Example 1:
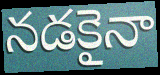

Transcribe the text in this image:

నడకైనా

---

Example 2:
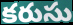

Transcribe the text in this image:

కరుసు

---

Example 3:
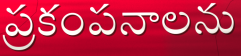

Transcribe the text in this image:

ప్రకంపనాలను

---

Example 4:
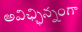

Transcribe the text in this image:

అవిఛ్ఛిన్నంగా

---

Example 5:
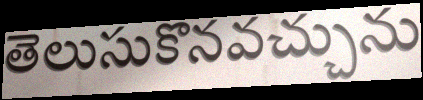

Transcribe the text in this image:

తెలుసుకొనవచ్చును